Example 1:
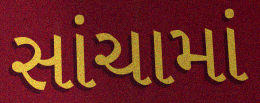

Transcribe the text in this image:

સાંચામાં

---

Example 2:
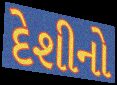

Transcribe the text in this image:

દેશીનો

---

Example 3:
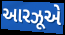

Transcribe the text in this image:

આરઝૂએ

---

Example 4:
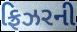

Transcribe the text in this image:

ફ્રિઝરની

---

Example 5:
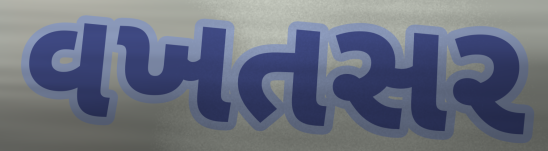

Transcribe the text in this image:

વખતસર